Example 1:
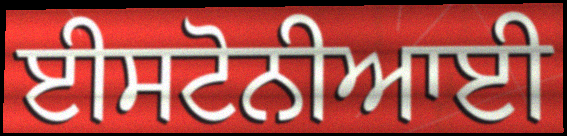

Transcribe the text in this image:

ਈਸਟੋਨੀਆਈ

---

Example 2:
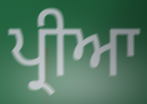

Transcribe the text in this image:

ਪ੍ਰੀਆ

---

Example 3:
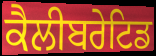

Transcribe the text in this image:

ਕੈਲੀਬਰੇਟਿਡ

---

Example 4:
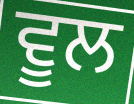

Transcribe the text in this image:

ਵੂਲ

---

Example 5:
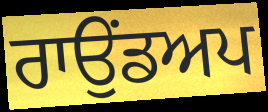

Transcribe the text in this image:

ਰਾਉਂਡਅਪ